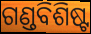
ଗଣ୍ଡବିଶିଷ୍ଟ